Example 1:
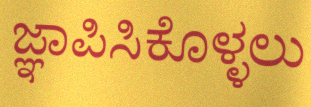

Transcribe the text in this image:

ಜ್ಞಾಪಿಸಿಕೊಳ್ಳಲು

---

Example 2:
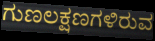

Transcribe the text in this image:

ಗುಣಲಕ್ಷಣಗಳಿರುವ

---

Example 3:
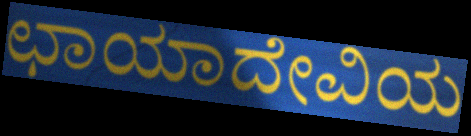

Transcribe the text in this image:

ಛಾಯಾದೇವಿಯ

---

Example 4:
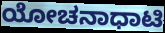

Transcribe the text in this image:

ಯೋಚನಾಧಾಟಿ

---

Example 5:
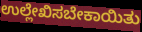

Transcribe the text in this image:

ಉಲ್ಲೇಖಿಸಬೇಕಾಯಿತು